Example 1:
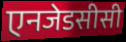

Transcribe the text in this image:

एनजेडसीसी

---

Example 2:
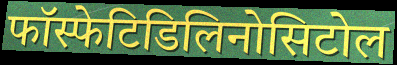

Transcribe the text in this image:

फॉस्फेटिडिलिनोसिटोल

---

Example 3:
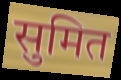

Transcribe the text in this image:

सुमित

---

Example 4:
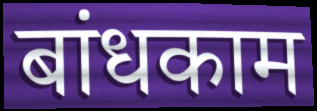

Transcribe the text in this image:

बांधकाम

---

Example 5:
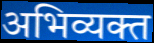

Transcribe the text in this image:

अभिव्यक्त